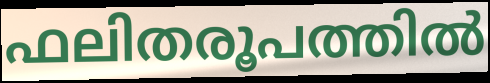
ഫലിതരൂപത്തിൽ